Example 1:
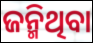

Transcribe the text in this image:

ଜନ୍ମିଥିବା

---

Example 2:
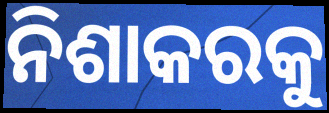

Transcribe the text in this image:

ନିଶାକରକୁ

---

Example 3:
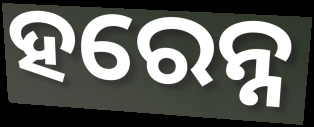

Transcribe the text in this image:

ହରେନ୍ନ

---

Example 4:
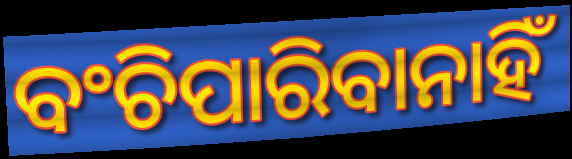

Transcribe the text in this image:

ବଂଚିପାରିବାନାହିଁ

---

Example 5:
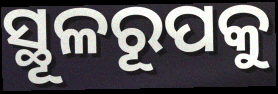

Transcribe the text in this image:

ସ୍ଥୂଳରୂପକୁ